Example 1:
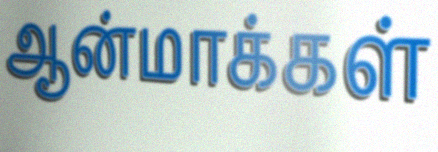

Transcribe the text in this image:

ஆன்மாக்கள்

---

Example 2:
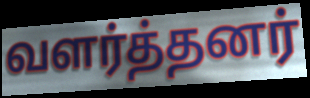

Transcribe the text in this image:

வளர்த்தனர்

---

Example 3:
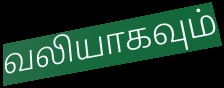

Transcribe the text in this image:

வலியாகவும்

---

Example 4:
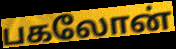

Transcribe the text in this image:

பகலோன்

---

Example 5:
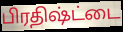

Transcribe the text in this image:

பிரதிஷ்ட்டை